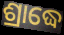
ଶ୍ରାଦ୍ଧେ